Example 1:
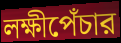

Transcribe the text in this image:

লক্ষীপেঁচার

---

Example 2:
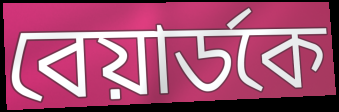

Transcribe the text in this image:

বেয়ার্ডকে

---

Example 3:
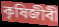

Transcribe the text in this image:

কৃষিজীবী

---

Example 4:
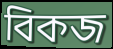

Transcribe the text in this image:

বিকজ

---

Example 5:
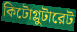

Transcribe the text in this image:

কিটোগ্লুটারেট